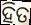
ହିତ